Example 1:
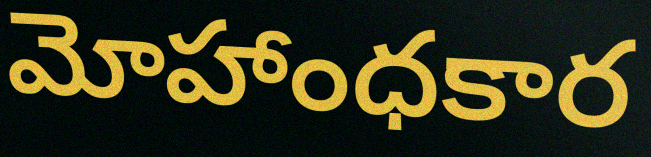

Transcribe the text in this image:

మోహాంధకార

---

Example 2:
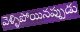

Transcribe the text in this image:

వెళ్ళిపోయినప్పుడు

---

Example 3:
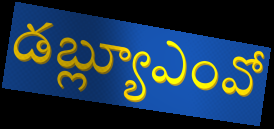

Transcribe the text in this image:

డబ్ల్యూఎంవో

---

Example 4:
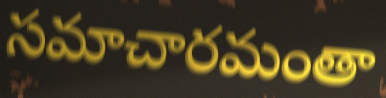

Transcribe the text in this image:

సమాచారమంతా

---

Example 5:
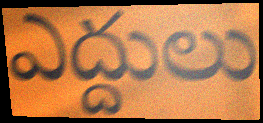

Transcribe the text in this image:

ఎద్దులు